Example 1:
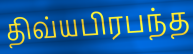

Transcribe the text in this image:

திவ்யபிரபந்த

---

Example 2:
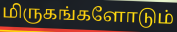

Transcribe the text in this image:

மிருகங்களோடும்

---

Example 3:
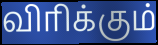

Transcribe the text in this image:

விரிக்கும்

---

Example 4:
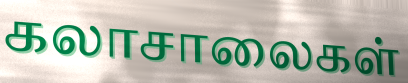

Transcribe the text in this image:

கலாசாலைகள்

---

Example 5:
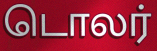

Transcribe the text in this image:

டொலர்